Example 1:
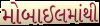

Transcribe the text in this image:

મોબાઈલમાંથી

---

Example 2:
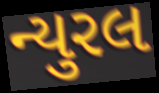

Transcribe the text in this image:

ન્યુરલ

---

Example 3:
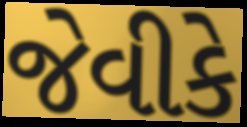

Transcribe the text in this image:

જેવીકે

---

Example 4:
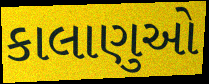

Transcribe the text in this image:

કાલાણુઓ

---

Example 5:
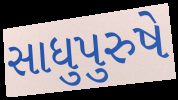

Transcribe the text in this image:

સાધુપુરુષે